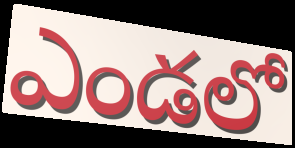
ఎండలో